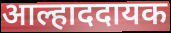
आल्हाददायक